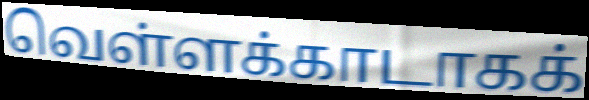
வெள்ளக்காடாகக்